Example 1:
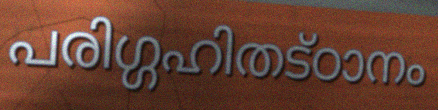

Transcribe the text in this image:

പരിഗ്ഗഹിതട്ഠാനം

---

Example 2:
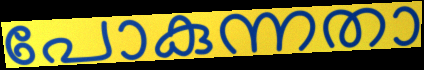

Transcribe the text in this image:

പോകുന്നതാ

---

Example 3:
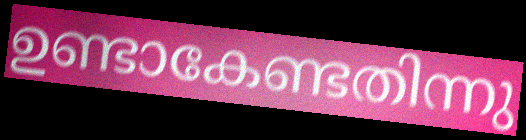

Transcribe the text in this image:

ഉണ്ടാകേണ്ടതിന്നു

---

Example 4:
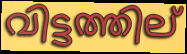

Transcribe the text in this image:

വിട്ടത്തില്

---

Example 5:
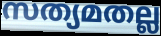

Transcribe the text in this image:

സത്യമതല്ല